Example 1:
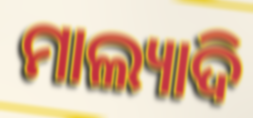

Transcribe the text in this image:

ମାଲ୍ୟାଦି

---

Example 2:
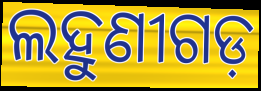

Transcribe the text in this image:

ଲହୁଣୀଗଡ଼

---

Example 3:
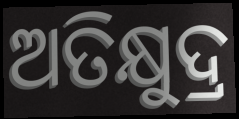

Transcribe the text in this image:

ଅତିକ୍ଷୁଦ୍ର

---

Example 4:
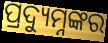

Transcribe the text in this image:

ପ୍ରଦ୍ୟୁମ୍ନଙ୍କର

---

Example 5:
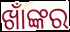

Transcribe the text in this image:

ଖାଁଙ୍କର